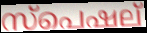
സ്പെഷല്